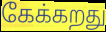
கேக்கறது